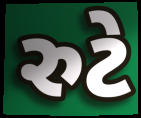
રુટે